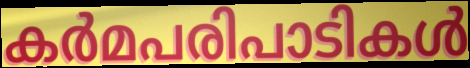
കർമപരിപാടികൾ